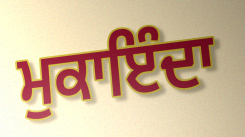
ਮੁਕਾਇੰਦਾ